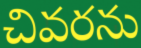
చివరను